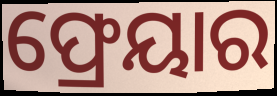
ଫ୍ରେୟାର